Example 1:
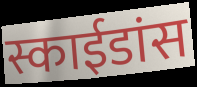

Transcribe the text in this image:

स्काईडांस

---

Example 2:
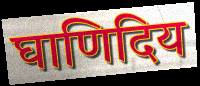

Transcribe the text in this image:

घाणिदिय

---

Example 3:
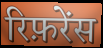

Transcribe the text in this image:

रिफ़रेंस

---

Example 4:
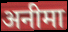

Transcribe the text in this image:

अनीमा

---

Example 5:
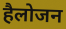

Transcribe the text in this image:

हैलोजन